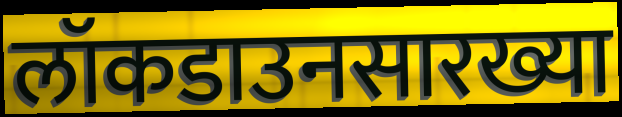
लॉकडाउनसारख्या